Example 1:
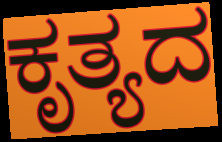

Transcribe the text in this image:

ಕೃತ್ಯದ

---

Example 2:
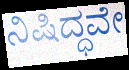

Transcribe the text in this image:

ನಿಷಿದ್ಧವೇ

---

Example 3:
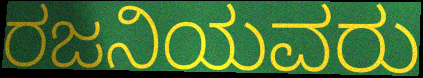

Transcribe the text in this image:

ರಜನಿಯವರು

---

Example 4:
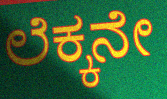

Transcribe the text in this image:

ಲೆಕ್ಕನೇ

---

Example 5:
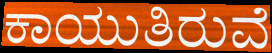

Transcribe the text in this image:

ಕಾಯುತಿರುವೆ